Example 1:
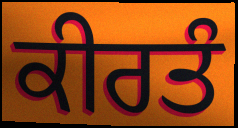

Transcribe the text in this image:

ਕੀਰਤੰ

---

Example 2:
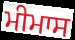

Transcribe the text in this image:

ਮੀਮਾਸ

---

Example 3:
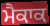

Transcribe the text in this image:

ਮੈਕਾਕ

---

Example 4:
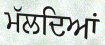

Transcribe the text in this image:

ਮੱਲਦਿਆਂ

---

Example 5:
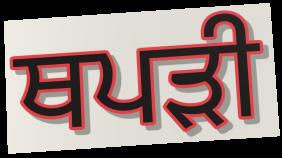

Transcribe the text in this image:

ਥਪੜੀ